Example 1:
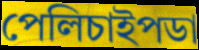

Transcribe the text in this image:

পেলিচাইপডা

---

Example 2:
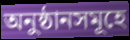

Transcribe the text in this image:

অনুষ্ঠানসমূহে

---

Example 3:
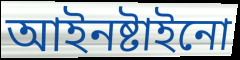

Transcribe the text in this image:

আইনষ্টাইনো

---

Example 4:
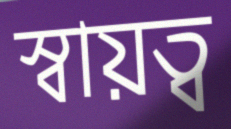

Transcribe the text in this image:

স্বায়ত্ব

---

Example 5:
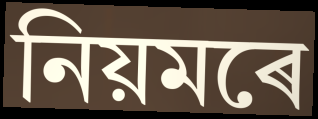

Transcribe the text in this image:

নিয়মৰে